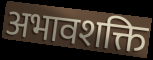
अभावशक्ति